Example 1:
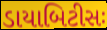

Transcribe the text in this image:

ડાયાબિટીસઃ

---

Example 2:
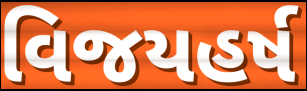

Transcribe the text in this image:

વિજયહર્ષ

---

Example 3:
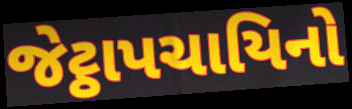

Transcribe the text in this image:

જેટ્ઠાપચાયિનો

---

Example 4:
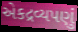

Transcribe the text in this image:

એકદ્રવ્યપણું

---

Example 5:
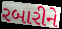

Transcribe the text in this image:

રબારીને